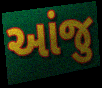
આંજુ